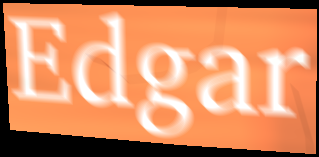
Edgar